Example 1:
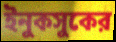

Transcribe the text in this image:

ইনুকসুকের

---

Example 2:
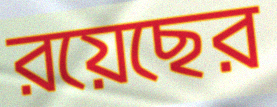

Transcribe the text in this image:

রয়েছের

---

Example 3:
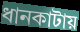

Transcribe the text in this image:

ধানকাটায়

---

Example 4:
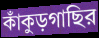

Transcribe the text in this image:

কাঁকুড়গাছির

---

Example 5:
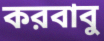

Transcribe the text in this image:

করবাবু